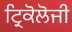
ਟ੍ਰਿਕੋਲੋਜੀ